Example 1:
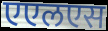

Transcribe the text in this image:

एएलएस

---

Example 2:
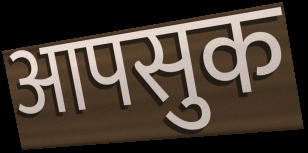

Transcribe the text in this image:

आपसुक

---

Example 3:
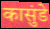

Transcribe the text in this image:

कासुंडे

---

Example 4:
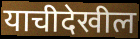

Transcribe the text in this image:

याचीदेखील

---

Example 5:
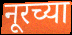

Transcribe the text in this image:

नूरच्या